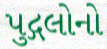
પુદ્ગલોનો